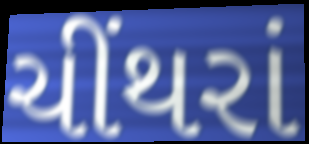
ચીંથરાં